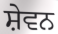
ਸ਼ੇਵਨ